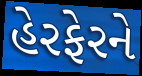
હેરફેરને